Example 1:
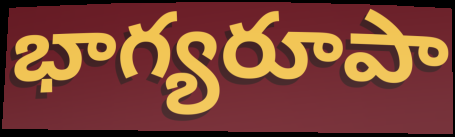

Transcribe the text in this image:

భాగ్యరూపా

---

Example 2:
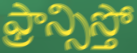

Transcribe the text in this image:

ఫ్రాన్సిస్తో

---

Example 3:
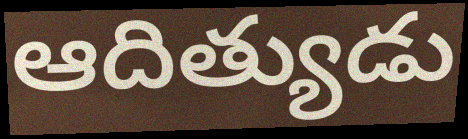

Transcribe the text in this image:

ఆదిత్యుడు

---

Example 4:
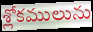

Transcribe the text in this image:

శ్లోకములును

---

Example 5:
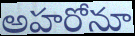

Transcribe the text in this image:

అహరోనూ